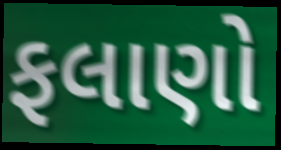
ફલાણો